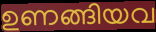
ഉണങ്ങിയവ